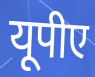
यूपीए